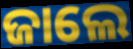
ଜାଲେ